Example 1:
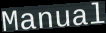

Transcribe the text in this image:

Manual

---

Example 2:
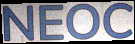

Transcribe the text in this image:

NEOC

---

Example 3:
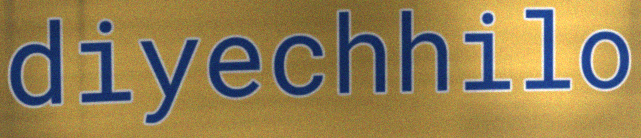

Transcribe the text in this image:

diyechhilo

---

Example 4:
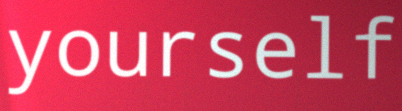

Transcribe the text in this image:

yourself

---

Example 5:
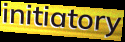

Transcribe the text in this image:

initiatory